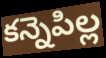
కన్నెపిల్ల